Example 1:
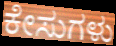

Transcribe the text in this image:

ಕೇಸುಗಳು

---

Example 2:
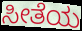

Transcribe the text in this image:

ಸೀತೆಯ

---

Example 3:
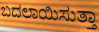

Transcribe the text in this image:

ಬದಲಾಯಿಸುತ್ತಾ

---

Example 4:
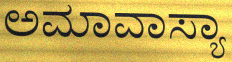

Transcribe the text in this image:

ಅಮಾವಾಸ್ಯಾ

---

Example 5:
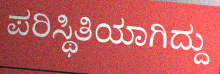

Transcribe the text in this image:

ಪರಿಸ್ಥಿತಿಯಾಗಿದ್ದು